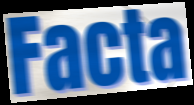
Facta